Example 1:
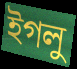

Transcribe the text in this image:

ইগলু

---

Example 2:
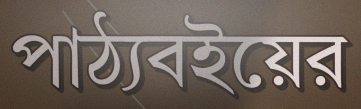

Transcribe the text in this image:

পাঠ্যবইয়ের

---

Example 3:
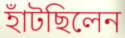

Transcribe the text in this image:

হাঁটছিলেন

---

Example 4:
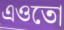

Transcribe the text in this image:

এওতো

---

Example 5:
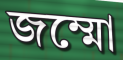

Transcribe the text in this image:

জম্মো